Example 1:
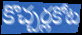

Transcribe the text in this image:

కొచ్చర్లకోట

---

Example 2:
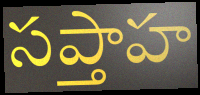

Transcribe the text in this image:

సప్తాహ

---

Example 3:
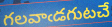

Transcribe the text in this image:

గలవాఁడగుటచే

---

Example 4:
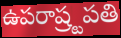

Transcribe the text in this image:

ఉపరాష్ర్టపతి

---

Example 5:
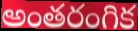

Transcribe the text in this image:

అంతరంగిక